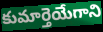
కుమార్తెయేగాని